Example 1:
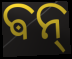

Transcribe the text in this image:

ଵନ୍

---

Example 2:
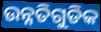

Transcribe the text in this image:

ଉନ୍ନତିଗୁଡିକ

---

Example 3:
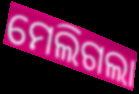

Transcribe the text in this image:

ମେଲିଗଲା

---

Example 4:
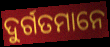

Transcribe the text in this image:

ଦୁର୍ଗତମାନେ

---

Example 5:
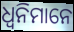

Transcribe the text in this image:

ଧ୍ୱନିମାନେ